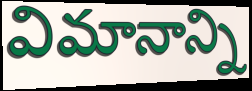
విమానాన్ని